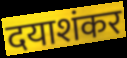
दयाशंकर